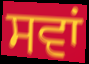
ਸਵਾਂ